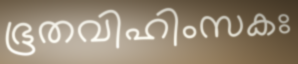
ഭൂതവിഹിംസകഃ